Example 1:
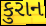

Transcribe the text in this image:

કુરાન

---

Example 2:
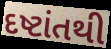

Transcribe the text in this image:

દષ્ટાંતથી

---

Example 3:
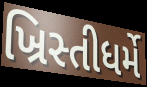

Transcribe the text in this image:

ખ્રિસ્તીધર્મે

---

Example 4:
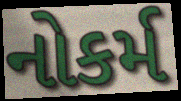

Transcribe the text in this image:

નોકર્મ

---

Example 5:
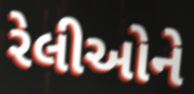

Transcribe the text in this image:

રેલીઓને